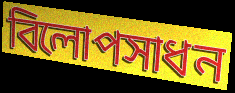
বিলোপসাধন